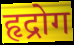
हृद्रोग